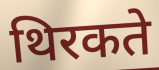
थिरकते